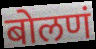
बोलणं